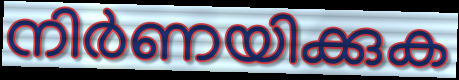
നിർണയിക്കുക